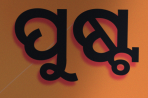
ପୁଷ୍ଟ